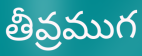
తీవ్రముగ